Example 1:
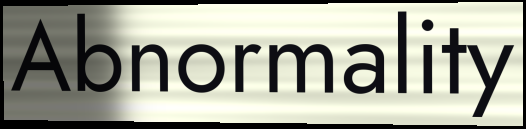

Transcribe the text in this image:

Abnormality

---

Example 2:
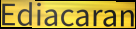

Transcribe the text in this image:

Ediacaran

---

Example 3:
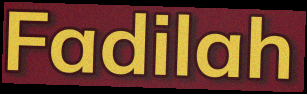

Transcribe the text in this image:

Fadilah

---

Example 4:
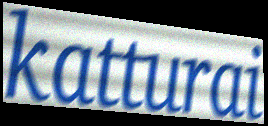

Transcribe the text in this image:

katturai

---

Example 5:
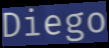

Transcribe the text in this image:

Diego